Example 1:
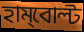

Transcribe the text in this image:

হাম্‌বোল্ট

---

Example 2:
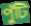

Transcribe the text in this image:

পুঁটি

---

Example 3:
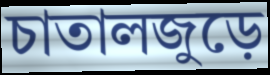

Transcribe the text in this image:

চাতালজুড়ে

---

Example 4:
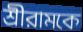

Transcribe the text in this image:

শ্রীরামকে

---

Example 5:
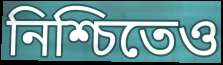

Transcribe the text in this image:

নিশ্চিতেও